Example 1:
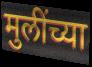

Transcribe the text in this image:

मुलींच्या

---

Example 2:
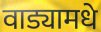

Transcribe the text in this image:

वाड्यामधे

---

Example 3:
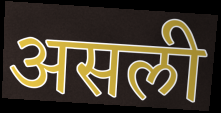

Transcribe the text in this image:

असली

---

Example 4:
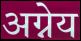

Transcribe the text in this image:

अग्नेय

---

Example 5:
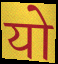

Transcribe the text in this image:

यो